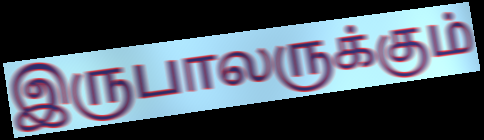
இருபாலருக்கும்